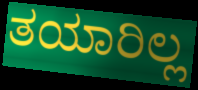
ತಯಾರಿಲ್ಲ